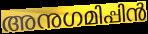
അനുഗമിപ്പിൻ